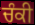
ਚੰਕੀ